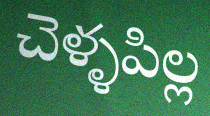
చెళ్ళపిల్ల